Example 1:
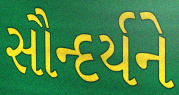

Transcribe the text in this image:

સૌન્દર્યને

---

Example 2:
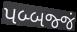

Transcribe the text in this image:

પબ્બજ્જં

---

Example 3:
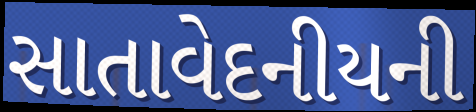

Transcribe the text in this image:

સાતાવેદનીયની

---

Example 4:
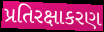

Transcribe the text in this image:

પ્રતિરક્ષાકરણ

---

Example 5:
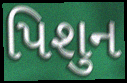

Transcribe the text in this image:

પિશુન